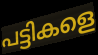
പട്ടികളെ